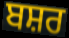
ਬਸ਼ਰ